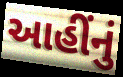
આહીંનું